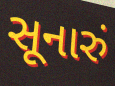
સૂનારું